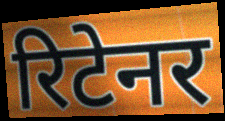
रिटेनर